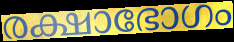
രക്ഷാഭോഗം